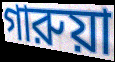
গারুয়া